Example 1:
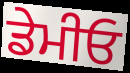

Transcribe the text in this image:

ਡੇਮੀਓ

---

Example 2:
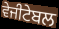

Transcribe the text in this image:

ਵੇਜੀਟੇਬਲ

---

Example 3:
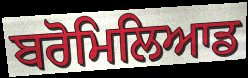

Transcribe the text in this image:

ਬਰੋਮਿਲਿਆਡ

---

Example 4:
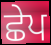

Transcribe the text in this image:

ਛੇਪ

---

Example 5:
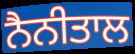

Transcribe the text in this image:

ਨੈਨੀਤਾਲ